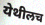
येथीलच